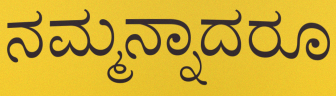
ನಮ್ಮನ್ನಾದರೂ